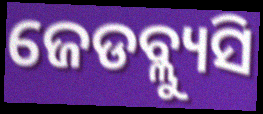
ଜେଡବ୍ଲ୍ୟୁସି